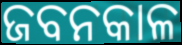
ଜବନକାଳ